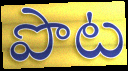
పొట